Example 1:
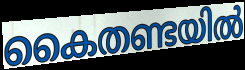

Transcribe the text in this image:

കൈതണ്ടയിൽ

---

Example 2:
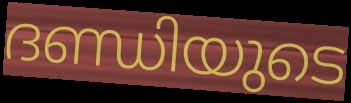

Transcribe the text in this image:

ദണ്ഡിയുടെ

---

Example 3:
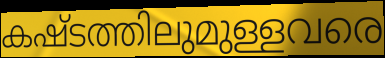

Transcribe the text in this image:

കഷ്ടത്തിലുമുള്ളവരെ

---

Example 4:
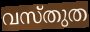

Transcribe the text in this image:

വസ്തുത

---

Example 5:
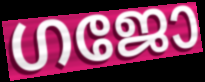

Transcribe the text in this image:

ഗജോ